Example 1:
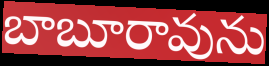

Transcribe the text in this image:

బాబూరావును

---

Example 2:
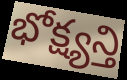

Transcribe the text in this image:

భోక్ష్యన్తి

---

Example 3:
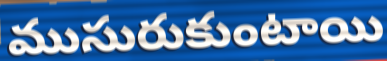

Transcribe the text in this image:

ముసురుకుంటాయి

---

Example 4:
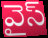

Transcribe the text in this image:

వైస్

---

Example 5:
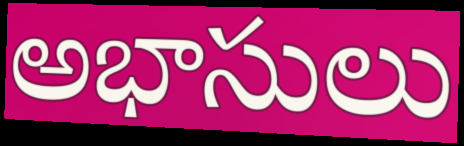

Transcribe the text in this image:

అభాసులు